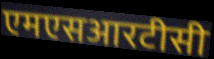
एमएसआरटीसी